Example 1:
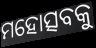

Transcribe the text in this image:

ମହୋତ୍ସବକୁ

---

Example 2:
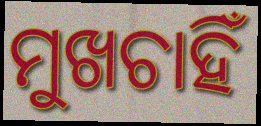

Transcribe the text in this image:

ମୁଖଚାହିଁ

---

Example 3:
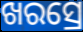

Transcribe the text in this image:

ଖରସ୍ରେ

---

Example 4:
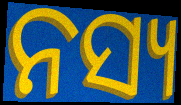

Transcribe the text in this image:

ନସ୍ୟ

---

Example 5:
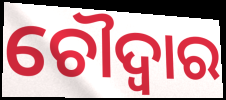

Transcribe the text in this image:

ଚୌଦ୍ଵାର